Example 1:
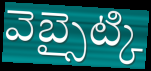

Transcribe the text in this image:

వెబ్సైట్కి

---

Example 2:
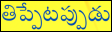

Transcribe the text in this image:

తిప్పేటప్పుడు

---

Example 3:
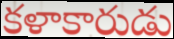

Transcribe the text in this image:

కళాకారుడు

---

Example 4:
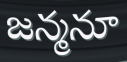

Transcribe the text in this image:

జన్మనూ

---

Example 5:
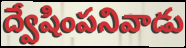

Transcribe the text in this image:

ద్వేషింపనివాడు